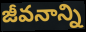
జీవనాన్ని